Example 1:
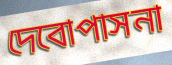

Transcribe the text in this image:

দেবোপাসনা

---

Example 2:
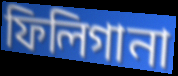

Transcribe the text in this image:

ফিলিগানা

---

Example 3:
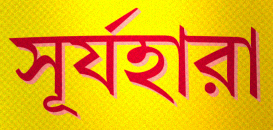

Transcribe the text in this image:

সূর্যহারা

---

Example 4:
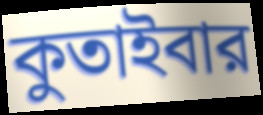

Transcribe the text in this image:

কুতাইবার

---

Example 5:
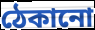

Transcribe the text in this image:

ঠেকানো